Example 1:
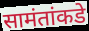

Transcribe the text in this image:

सामंतांकडे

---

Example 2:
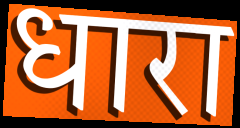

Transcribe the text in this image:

धारा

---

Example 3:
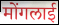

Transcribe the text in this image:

मोंगलाई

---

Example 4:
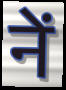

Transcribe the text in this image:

नें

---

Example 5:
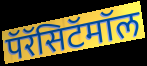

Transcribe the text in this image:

पॅरॅसिटॅमॉल